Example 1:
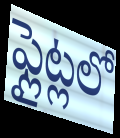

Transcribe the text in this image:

ఫ్లైట్లలో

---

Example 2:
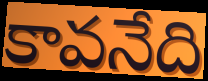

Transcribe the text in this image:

కావనేది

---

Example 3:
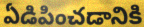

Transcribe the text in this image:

ఏడిపించడానికి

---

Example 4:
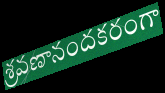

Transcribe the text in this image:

శ్రవణానందకరంగా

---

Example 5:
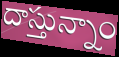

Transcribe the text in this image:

దాస్తున్నాం